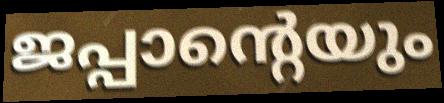
ജപ്പാന്റെയും